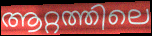
ആറ്റത്തിലെ